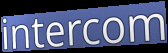
intercom